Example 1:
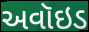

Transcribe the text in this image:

અવૉઇડ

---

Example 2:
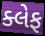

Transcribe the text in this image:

ક્લેફ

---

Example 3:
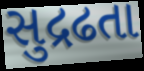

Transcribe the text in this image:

સુદ્રઢતા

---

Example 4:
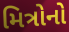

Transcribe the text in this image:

મિત્રોનો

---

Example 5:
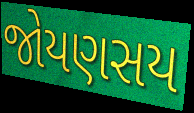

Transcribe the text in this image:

જોયણસય